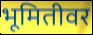
भूमितीवर